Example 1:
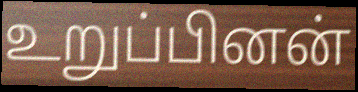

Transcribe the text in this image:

உறுப்பினன்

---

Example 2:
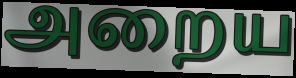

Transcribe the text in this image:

அறைய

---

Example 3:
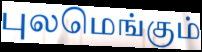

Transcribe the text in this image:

புலமெங்கும்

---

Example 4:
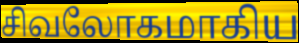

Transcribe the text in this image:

சிவலோகமாகிய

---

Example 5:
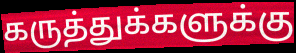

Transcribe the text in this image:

கருத்துக்களுக்கு